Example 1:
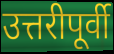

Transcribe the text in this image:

उत्तरीपूर्वी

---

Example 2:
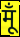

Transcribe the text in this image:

मूँ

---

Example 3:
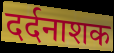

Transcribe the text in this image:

दर्दनाशक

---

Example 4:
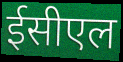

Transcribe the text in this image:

ईसीएल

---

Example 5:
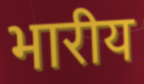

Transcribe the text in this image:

भारीय